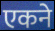
एकने